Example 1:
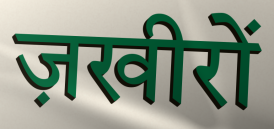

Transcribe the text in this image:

ज़खीरों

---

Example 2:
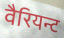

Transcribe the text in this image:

वैरियन्ट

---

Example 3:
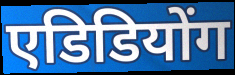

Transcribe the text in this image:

एडिडियोंग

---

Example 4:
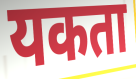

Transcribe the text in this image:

यकता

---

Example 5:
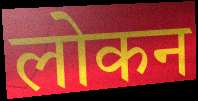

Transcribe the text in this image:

लोकन